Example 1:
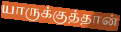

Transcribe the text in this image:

யாருக்குத்தான்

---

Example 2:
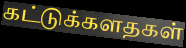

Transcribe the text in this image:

கட்டுக்களதகள்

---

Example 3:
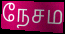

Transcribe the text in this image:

நேசம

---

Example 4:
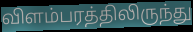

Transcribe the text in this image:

விளம்பரத்திலிருந்து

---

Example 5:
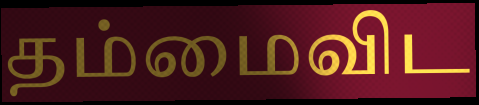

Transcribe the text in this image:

தம்மைவிட